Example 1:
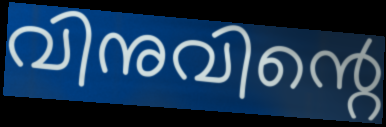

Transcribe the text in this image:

വിനുവിന്റെ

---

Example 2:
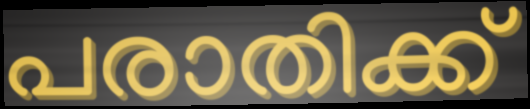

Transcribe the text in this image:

പരാതിക്ക്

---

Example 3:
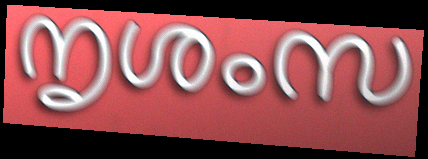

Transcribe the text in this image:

നൃശംസ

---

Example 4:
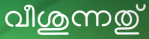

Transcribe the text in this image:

വീശുന്നതു്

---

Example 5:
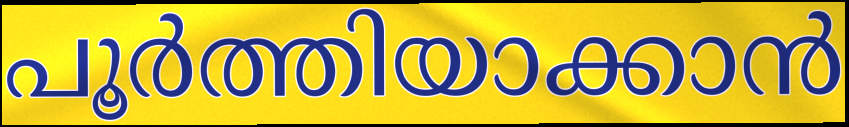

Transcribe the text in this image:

പൂർത്തിയാക്കാൻ